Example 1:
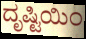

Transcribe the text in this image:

ದೃಷ್ಟಿಯಿಂ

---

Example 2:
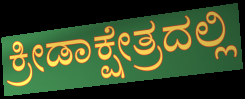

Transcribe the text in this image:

ಕ್ರೀಡಾಕ್ಷೇತ್ರದಲ್ಲಿ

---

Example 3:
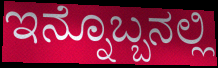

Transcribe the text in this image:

ಇನ್ನೊಬ್ಬನಲ್ಲಿ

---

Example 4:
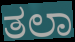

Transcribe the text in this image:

ತಲಾ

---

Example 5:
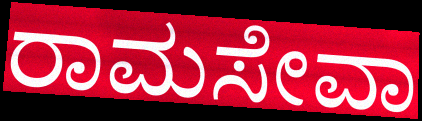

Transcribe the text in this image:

ರಾಮಸೇವಾ